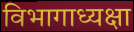
विभागाध्यक्षा